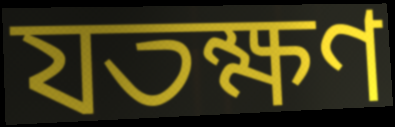
যতক্ষণ